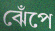
ঝেঁপে